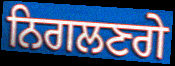
ਨਿਗਲਣਗੇ